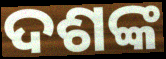
ଦଶଙ୍କ